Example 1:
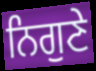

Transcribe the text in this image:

ਨਿਗੁਣੇ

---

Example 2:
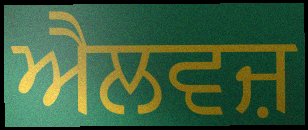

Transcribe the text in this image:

ਐਲਵਜ਼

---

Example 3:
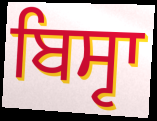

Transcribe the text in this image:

ਬਿਸ੍ਟਾ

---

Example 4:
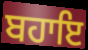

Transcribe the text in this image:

ਬਹਾਇ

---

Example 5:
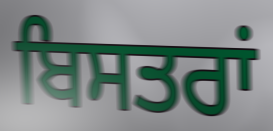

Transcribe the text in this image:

ਬਿਸਤਰਾਂ